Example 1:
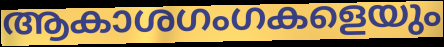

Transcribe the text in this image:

ആകാശഗംഗകളെയും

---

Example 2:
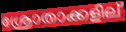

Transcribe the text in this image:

ശ്രോതാക്കളില്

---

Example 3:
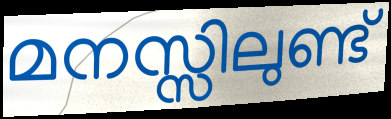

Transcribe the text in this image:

മനസ്സിലുണ്ട്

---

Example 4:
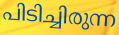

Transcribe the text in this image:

പിടിച്ചിരുന്ന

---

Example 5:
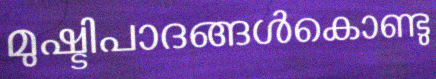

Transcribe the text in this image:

മുഷ്ടിപാദങ്ങൾകൊണ്ടു